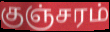
குஞ்சரம்